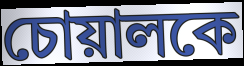
চোয়ালকে